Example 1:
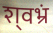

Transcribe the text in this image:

श्वभ्रं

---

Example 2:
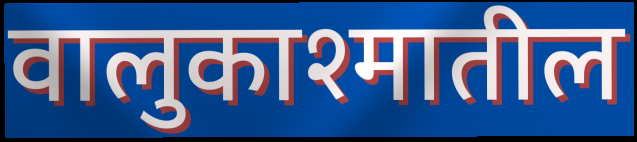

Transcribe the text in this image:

वालुकाश्मातील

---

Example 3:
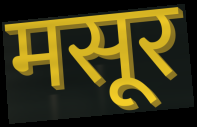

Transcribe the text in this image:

मसूर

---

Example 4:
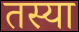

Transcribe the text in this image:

तस्या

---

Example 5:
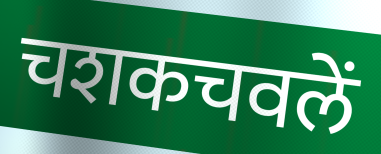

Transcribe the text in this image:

चशकचवलें